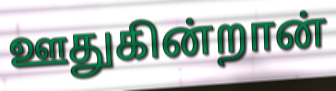
ஊதுகின்றான்